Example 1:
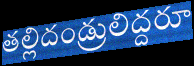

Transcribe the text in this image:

తల్లిదండ్రులిద్దరూ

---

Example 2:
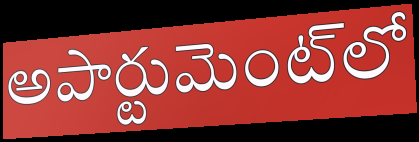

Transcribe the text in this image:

అపార్టుమెంట్‌లో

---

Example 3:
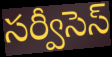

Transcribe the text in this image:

సర్వీసెస్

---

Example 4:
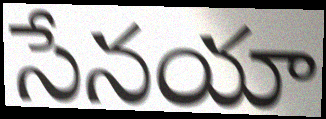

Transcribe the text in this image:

సేనయా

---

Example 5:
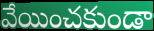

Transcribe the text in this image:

వేయించకుండా